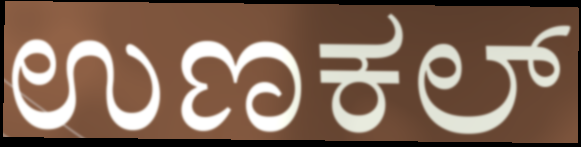
ಉಣಕಲ್